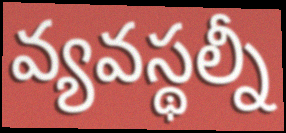
వ్యవస్థల్నీ